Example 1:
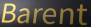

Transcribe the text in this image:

Barent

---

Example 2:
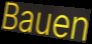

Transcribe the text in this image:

Bauen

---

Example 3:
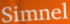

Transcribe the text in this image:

Simnel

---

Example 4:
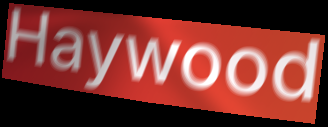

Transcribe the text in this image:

Haywood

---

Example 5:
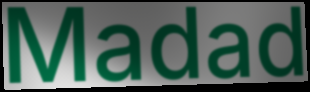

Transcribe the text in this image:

Madad